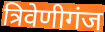
त्रिवेणीगंज